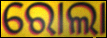
ରୋଲା